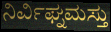
ನಿರ್ವಿಘ್ನಮಸ್ತು